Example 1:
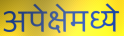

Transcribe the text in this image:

अपेक्षेमध्ये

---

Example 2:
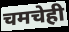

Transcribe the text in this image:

चमचेही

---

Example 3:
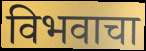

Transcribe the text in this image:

विभवाचा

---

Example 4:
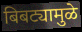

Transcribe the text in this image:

बिबट्यामुळे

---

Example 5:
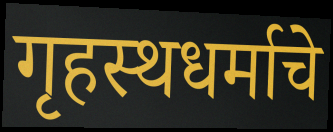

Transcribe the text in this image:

गृहस्थधर्माचे